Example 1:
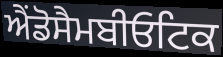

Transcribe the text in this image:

ਐਂਡੋਸੈਮਬੀਓਟਿਕ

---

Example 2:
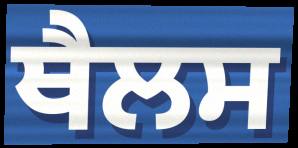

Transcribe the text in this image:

ਥੈਲਸ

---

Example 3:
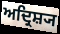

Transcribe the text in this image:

ਅਦ੍ਰਿਸ਼੍ਯ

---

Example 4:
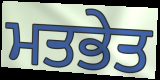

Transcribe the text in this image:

ਮਤਭੇਤ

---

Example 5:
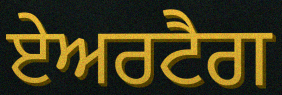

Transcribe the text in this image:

ਏਅਰਟੈਗ